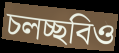
চলচ্ছবিও